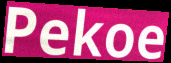
Pekoe